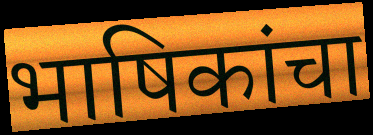
भाषिकांचा